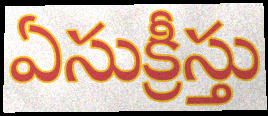
ఏసుక్రీస్తు